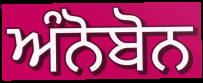
ਅੰਨੋਬੋਨ